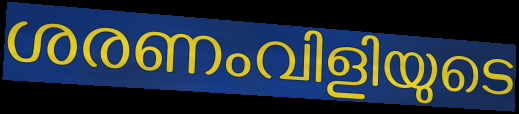
ശരണംവിളിയുടെ